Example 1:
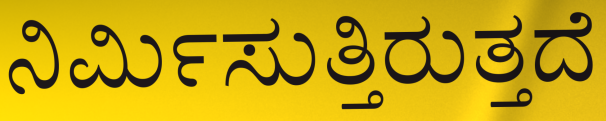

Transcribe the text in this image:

ನಿರ್ಮಿಸುತ್ತಿರುತ್ತದೆ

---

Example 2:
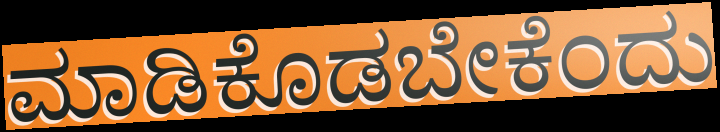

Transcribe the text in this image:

ಮಾಡಿಕೊಡಬೇಕೆಂದು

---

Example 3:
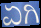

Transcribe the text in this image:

ಏಗಿ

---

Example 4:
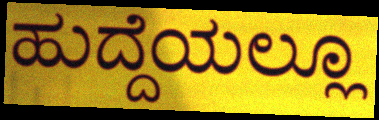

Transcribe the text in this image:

ಹುದ್ದೆಯಲ್ಲೂ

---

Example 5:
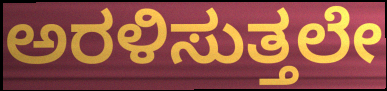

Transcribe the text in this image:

ಅರಳಿಸುತ್ತಲೇ